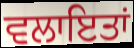
ਵਲਾਇਤਾਂ